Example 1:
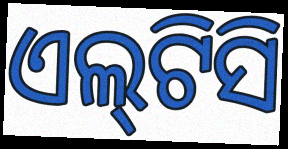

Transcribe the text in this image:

ଏଲ୍‌ଟିସି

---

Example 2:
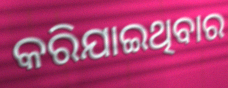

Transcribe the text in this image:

କରିଯାଇଥିବାର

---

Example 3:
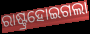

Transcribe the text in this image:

ରାଷ୍ଟ୍ରହୋଇଗଲା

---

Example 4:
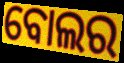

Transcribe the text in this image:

ବୋଲର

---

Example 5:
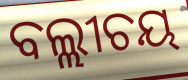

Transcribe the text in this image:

ବଲ୍ଲୀଚୟ